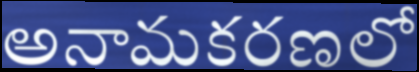
అనామకరణలో